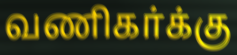
வணிகர்க்கு